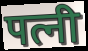
पत्नी